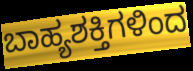
ಬಾಹ್ಯಶಕ್ತಿಗಳಿಂದ